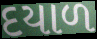
દયાળ